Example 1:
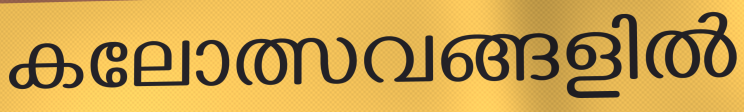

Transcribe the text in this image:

കലോത്സവങ്ങളിൽ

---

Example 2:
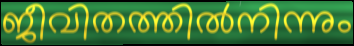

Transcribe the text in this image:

ജീവിതത്തിൽനിന്നും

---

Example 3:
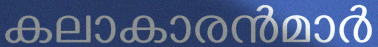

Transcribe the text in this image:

കലാകാരൻമാർ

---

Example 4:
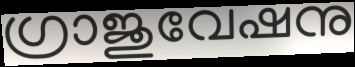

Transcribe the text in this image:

ഗ്രാജുവേഷനു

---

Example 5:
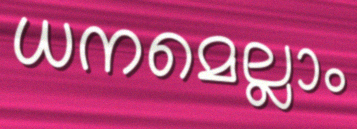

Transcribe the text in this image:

ധനമെല്ലാം